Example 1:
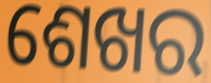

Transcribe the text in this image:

ଶେଖର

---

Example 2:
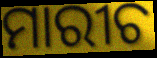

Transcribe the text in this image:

ମାରୀଚ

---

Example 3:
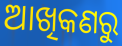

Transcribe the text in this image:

ଆଖିକଣରୁ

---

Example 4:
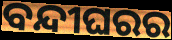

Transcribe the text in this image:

ବନ୍ଦୀଘରର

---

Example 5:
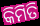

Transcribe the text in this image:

କିମିତି